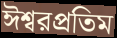
ঈশ্বরপ্রতিম